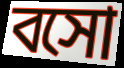
বসো